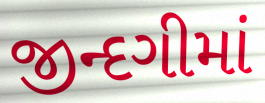
જીન્દગીમાં